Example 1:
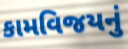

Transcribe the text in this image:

કામવિજયનું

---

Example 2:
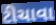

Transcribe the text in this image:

ટીચાવા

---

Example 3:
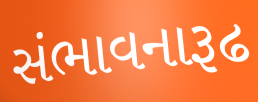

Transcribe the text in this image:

સંભાવનારૂઢ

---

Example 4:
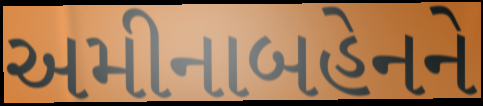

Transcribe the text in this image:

અમીનાબહેનને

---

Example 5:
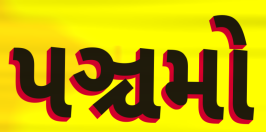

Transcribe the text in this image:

પઞ્ચમો